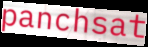
panchsat